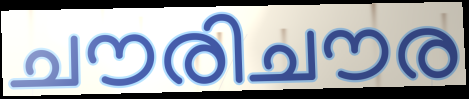
ചൗരിചൗര